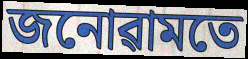
জনোৱামতে